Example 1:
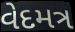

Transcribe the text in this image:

વેદમત્ર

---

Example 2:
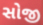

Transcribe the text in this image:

સોજી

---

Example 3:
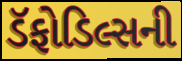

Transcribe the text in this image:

ડૅફોડિલ્સની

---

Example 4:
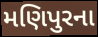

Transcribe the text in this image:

મણિપુરના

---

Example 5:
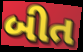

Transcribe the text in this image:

બીત